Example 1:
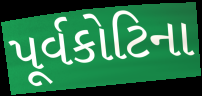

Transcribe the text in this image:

પૂર્વકોટિના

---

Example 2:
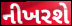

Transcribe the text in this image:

નીખરશે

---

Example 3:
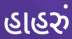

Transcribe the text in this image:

હાહરું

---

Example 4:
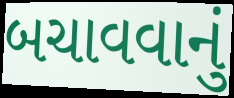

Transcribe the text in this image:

બચાવવાનું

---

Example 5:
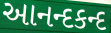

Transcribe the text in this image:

આનન્દકન્દ